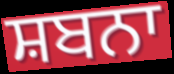
ਸ਼ਬਨਾ